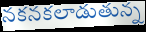
నకనకలాడుతున్న